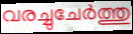
വരച്ചുചേർത്തു